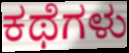
ಕಥೆಗಳು